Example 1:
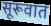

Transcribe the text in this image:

सूरूवात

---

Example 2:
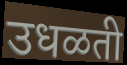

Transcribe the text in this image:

उधळती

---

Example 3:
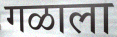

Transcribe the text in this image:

गळाला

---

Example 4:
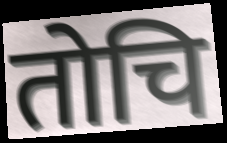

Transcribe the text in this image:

तोचि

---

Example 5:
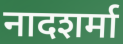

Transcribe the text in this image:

नादशर्मा